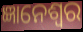
ଜ୍ଞାନେଶ୍ୱର